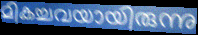
മികച്ചവയായിരുന്നു